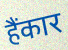
हैंकार